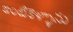
ఇంటికెళ్ళాను